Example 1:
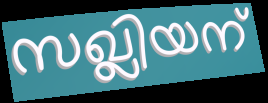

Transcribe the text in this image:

സഖ്ലിയന്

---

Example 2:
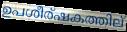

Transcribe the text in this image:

ഉപശീര്ഷകത്തില്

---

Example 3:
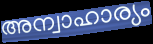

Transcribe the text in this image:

അന്വാഹാര്യം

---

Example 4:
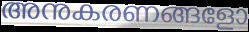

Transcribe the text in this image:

അനുകരണങ്ങളോ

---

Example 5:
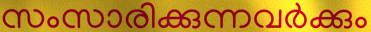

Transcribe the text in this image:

സംസാരിക്കുന്നവർക്കും